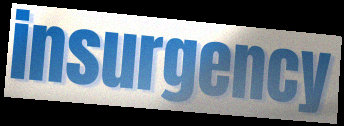
insurgency